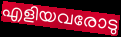
എളിയവരോടു